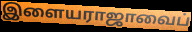
இளையராஜாவைப்